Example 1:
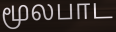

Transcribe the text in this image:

மூலபாட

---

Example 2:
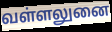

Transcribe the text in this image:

வள்ளலுனை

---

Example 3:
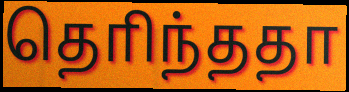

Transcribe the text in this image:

தெரிந்ததா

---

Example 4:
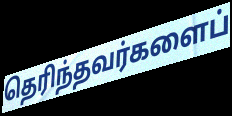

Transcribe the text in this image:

தெரிந்தவர்களைப்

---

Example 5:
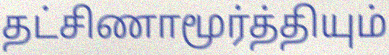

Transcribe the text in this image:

தட்சிணாமூர்த்தியும்